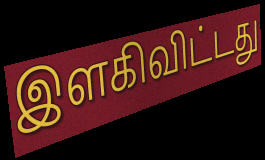
இளகிவிட்டது